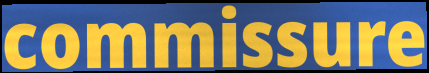
commissure